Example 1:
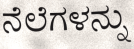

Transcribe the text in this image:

ನೆಲೆಗಳನ್ನು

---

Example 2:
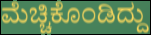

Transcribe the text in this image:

ಮೆಚ್ಚಿಕೊಂಡಿದ್ದು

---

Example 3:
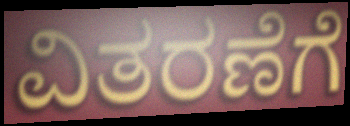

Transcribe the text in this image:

ವಿತರಣೆಗೆ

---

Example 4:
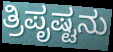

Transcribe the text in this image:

ತ್ರಿಪೃಷ್ಟನು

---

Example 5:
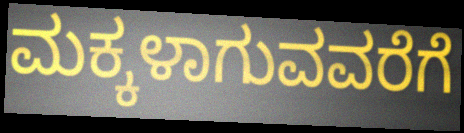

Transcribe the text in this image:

ಮಕ್ಕಳಾಗುವವರೆಗೆ